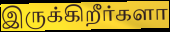
இருக்கிறீர்களா